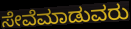
ಸೇವೆಮಾಡುವರು